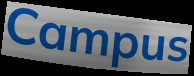
Campus